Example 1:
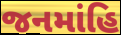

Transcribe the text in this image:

જનમાંહિ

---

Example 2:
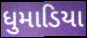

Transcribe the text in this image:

ધુમાડિયા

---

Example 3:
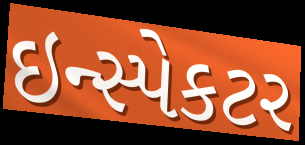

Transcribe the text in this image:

ઇન્સ્પેકટર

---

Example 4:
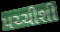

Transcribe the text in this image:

પચ્ચીશી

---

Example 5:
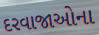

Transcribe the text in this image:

દરવાજાઓના